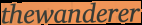
thewanderer